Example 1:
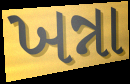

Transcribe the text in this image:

ખન્ના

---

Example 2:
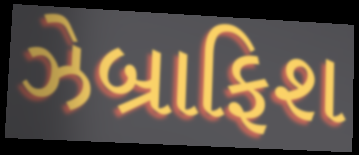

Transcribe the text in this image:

ઝેબ્રાફિશ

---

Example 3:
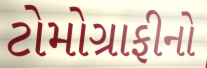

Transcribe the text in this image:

ટોમોગ્રાફીનો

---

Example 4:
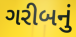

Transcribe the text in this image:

ગરીબનું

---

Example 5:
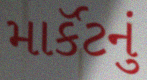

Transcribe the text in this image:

માર્કૅટનું